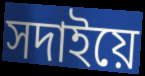
সদাইয়ে